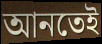
আনতেই